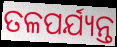
ତଳପର୍ଯ୍ୟନ୍ତ